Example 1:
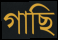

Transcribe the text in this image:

গাছি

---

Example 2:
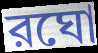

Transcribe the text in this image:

রঘো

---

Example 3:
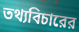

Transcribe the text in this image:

তথ্যবিচারের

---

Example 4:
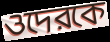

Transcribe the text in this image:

ওদেরকে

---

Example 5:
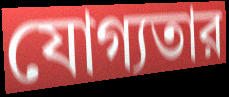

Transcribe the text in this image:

যোগ্যতার